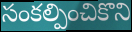
సంకల్పించికొని